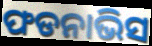
ଫଡନାଭିସ